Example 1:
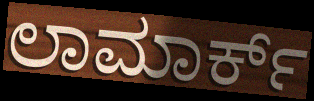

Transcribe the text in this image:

ಲಾಮಾರ್ಕ್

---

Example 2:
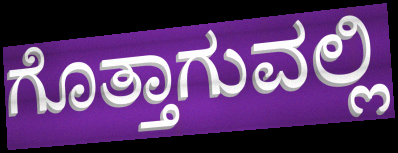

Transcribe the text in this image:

ಗೊತ್ತಾಗುವಲ್ಲಿ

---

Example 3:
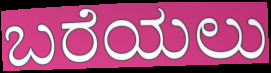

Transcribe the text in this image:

ಬರೆಯಲು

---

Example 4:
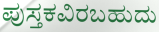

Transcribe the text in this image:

ಪುಸ್ತಕವಿರಬಹುದು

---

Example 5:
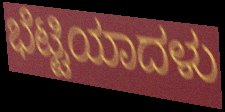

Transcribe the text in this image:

ಭೆಟ್ಟಿಯಾದಳು